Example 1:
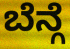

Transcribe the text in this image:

ಬೆನ್ಗೆ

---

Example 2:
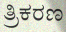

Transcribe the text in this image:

ತ್ರಿಕರಣ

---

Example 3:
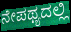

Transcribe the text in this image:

ನೇಪಥ್ಯದಲ್ಲಿ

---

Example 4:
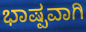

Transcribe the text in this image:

ಭಾಷ್ಪವಾಗಿ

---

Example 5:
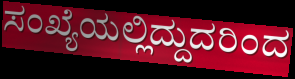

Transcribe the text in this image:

ಸಂಖ್ಯೆಯಲ್ಲಿದ್ದುದರಿಂದ